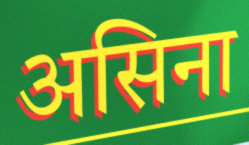
असिना